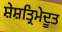
ਸ਼ੇਸ਼ਤ੍ਰਿਮੇਦੂਤ